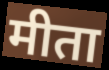
मीता